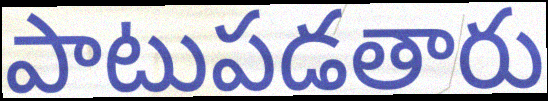
పాటుపడతారు